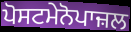
ਪੋਸਟਮੇਨੋਪਾਜ਼ਲ